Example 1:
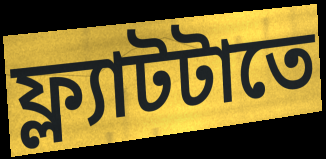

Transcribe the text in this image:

ফ্ল্যাটটাতে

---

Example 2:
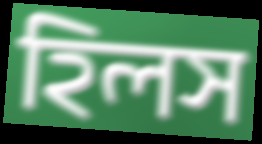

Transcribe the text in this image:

হিলস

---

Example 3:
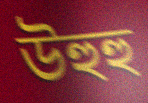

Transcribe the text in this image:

উহুহু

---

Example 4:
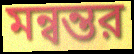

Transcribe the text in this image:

মন্বন্তর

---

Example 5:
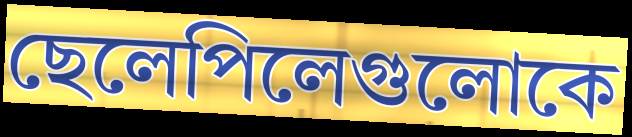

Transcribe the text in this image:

ছেলেপিলেগুলোকে